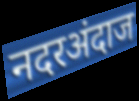
नदरअंदाज